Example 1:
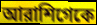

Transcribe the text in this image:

আরাশিগেকে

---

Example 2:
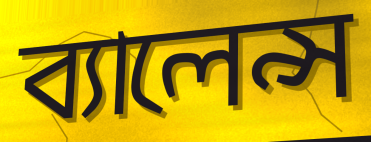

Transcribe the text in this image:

ব্যালেন্স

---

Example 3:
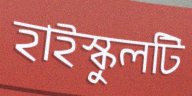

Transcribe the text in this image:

হাইস্কুলটি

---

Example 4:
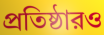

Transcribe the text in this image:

প্রতিষ্ঠারও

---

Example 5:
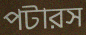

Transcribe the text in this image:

পটারস